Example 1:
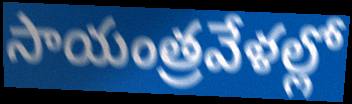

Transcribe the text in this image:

సాయంత్రవేళల్లో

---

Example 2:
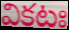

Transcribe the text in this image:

వికటః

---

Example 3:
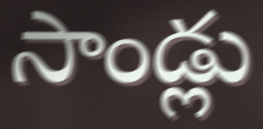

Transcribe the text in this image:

సాండ్లు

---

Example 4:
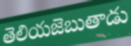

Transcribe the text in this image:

తెలియజెబుతాడు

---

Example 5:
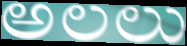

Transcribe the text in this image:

అలలు